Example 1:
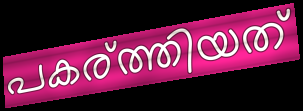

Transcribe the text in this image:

പകര്ത്തിയത്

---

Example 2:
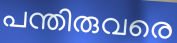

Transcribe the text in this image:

പന്തിരുവരെ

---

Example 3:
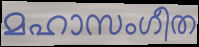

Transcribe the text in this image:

മഹാസംഗീത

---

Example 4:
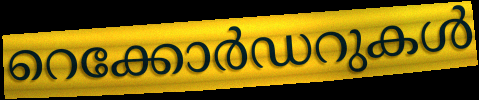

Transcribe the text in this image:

റെക്കോർഡറുകൾ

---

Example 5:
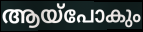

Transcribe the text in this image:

ആയ്പോകും